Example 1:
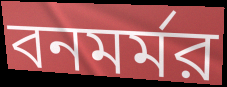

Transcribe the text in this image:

বনমর্মর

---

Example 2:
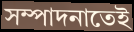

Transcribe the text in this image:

সম্পাদনাতেই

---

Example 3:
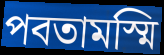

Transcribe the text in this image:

পবতামস্মি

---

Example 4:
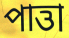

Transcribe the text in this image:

পাত্তা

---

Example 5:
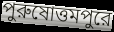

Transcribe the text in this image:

পুরুষোত্তমপুরে